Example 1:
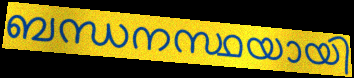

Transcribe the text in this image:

ബന്ധനസ്ഥയായി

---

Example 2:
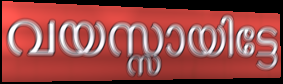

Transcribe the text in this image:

വയസ്സായിട്ടേ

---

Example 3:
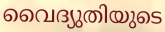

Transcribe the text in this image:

വൈദ്യുതിയുടെ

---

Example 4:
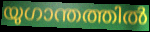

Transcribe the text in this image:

യുഗാന്തത്തിൽ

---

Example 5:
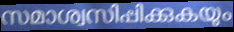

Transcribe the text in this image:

സമാശ്വസിപ്പിക്കുകയും